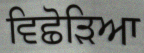
ਵਿਛੋੜਿਆ